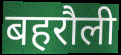
बहरौली